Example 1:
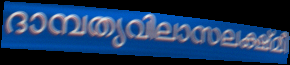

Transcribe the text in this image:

ദാമ്പത്യവിലാസലക്ഷ്മീ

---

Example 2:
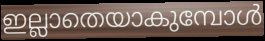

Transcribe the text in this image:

ഇല്ലാതെയാകുമ്പോൾ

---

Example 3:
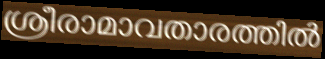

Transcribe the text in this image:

ശ്രീരാമാവതാരത്തിൽ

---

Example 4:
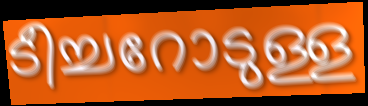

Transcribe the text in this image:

ടീച്ചറോടുള്ള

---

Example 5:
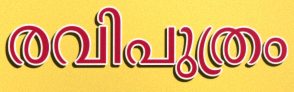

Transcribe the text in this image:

രവിപുത്രം